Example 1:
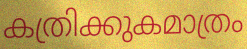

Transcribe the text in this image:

കത്രിക്കുകമാത്രം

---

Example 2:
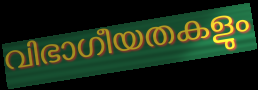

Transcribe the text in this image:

വിഭാഗീയതകളും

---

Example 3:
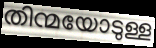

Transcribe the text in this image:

തിന്മയോടുള്ള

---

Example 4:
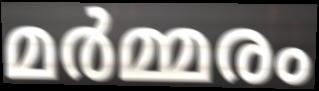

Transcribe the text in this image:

മർമ്മരം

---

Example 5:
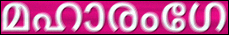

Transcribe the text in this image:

മഹാരംഗേ